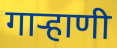
गार्‍हाणी